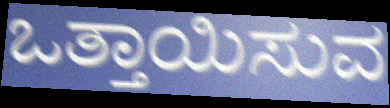
ಒತ್ತಾಯಿಸುವ